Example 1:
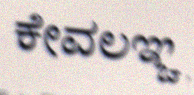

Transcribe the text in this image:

ಕೇವಲಞ್ಚ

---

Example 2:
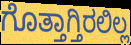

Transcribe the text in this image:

ಗೊತ್ತಾಗ್ತಿರಲಿಲ್ಲ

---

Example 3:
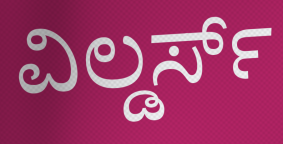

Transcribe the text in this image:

ವಿಲ್ಡರ್ಸ್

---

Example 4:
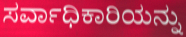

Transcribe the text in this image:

ಸರ್ವಾಧಿಕಾರಿಯನ್ನು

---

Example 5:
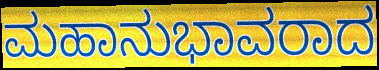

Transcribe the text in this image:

ಮಹಾನುಭಾವರಾದ